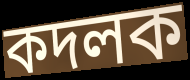
কদলক